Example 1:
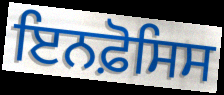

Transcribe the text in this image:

ਇਨਫ਼ੋਸਿਸ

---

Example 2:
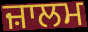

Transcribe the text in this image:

ਜ਼ਾਲਮ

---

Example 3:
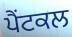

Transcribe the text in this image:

ਪੈਂਟਕਲ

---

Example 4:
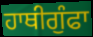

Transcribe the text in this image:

ਹਾਥੀਗੁੰਫਾ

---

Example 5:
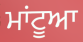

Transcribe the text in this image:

ਮਾਂਟੂਆ